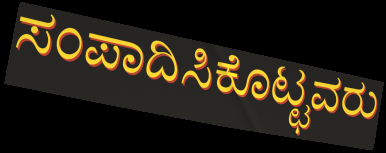
ಸಂಪಾದಿಸಿಕೊಟ್ಟವರು